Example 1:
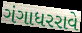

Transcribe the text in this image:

ગંગાધરરાવે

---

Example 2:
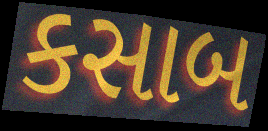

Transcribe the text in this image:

કસાબ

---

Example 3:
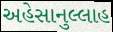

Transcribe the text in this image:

અહેસાનુલ્લાહ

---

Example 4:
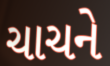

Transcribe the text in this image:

ચાચને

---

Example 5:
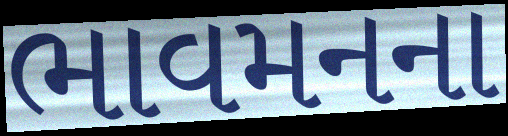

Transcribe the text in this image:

ભાવમનના